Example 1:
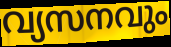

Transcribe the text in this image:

വ്യസനവും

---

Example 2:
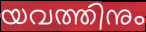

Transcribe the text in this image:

യവത്തിനും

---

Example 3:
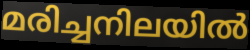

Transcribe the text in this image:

മരിച്ചനിലയിൽ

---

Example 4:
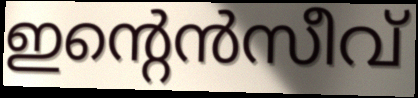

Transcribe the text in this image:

ഇന്റെൻസീവ്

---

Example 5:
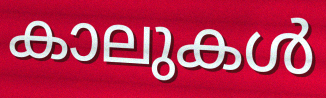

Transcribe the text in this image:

കാലുകൾ